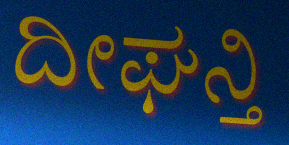
ದೀಘನ್ತಿ